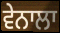
ਵੇਨਾਲਾ